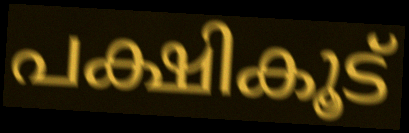
പക്ഷികൂട്